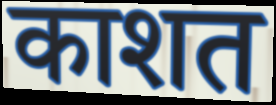
काशत